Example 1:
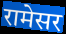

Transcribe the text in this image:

रामेसर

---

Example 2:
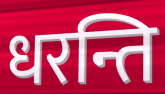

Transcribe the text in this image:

धरन्ति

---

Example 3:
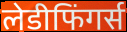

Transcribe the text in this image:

लेडीफिंगर्स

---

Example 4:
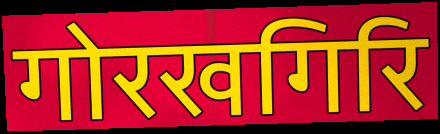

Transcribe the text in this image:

गोरखगिरि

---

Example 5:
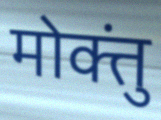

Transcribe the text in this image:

मोक्तुं